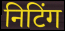
निटिंग